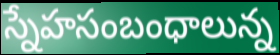
స్నేహసంబంధాలున్న